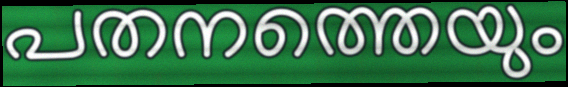
പതനത്തെയും